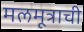
मलमूत्राची